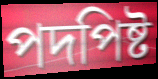
পদপিষ্ট